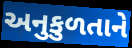
અનુકુળતાને